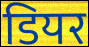
डियर